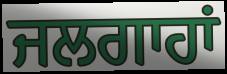
ਜਲਗਾਹਾਂ